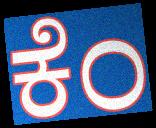
ಕೆಂ